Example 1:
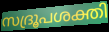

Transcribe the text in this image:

സദ്രൂപശക്തി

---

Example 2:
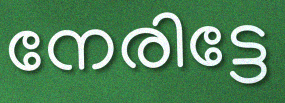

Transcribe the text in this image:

നേരിട്ടേ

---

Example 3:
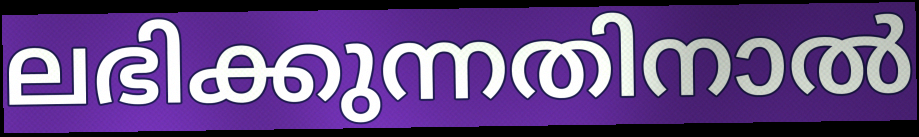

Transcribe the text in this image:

ലഭിക്കുന്നതിനാൽ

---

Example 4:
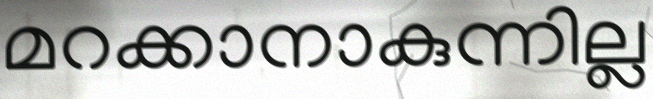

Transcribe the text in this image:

മറക്കാനാകുന്നില്ല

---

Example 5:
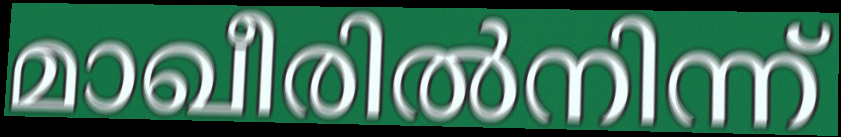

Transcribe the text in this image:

മാഖീരിൽനിന്ന്